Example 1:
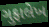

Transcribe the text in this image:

ગુફાલેખ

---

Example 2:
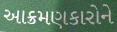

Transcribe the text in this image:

આક્રમણકારોને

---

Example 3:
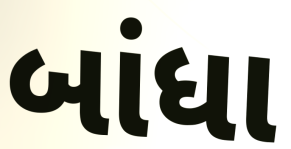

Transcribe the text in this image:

બાંધા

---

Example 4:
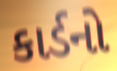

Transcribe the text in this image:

કાર્ડનો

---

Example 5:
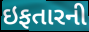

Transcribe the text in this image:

ઇફતારની